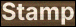
Stamp